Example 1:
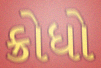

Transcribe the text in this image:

ક્રોધો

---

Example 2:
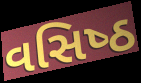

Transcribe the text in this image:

વસિષ્‍ઠ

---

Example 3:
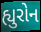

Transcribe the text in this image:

હ્યુરોન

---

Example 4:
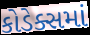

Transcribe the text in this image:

કોડેક્સમાં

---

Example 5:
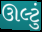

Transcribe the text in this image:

ઊલ્ટું